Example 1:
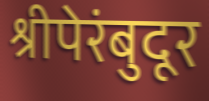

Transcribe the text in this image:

श्रीपेरंबुदूर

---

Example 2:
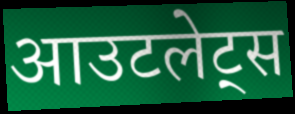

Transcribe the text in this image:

आउटलेट्स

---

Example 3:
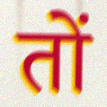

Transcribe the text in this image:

तों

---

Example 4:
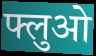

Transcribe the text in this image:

फ्लुओ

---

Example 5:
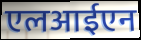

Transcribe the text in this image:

एलआईएन